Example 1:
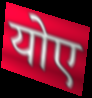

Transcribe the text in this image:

योए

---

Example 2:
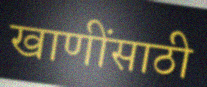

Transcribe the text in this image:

खाणींसाठी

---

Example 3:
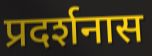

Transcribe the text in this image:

प्रदर्शनास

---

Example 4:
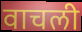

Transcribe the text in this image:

वाचली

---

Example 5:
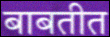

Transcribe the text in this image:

बाबतीत